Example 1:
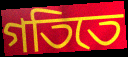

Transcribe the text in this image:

গতিতে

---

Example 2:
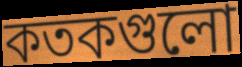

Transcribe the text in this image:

কতকগুলো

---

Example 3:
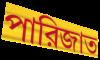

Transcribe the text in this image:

পারিজাত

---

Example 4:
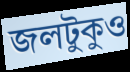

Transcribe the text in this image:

জলটুকুও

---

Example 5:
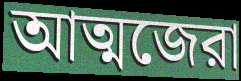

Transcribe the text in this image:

আত্মজেরা